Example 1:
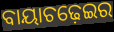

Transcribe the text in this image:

ବାୟାଚଢ଼େଇର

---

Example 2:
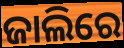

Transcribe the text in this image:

ଜାଲିରେ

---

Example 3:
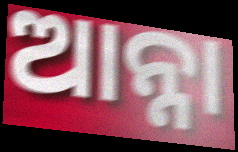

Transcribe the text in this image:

ଆନ୍ନା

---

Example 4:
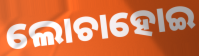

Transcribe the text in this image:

ଲୋଚାହୋଇ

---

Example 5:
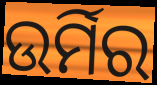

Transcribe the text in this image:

ଉର୍ମିର